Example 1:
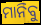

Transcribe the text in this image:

ମାନିବୁ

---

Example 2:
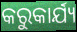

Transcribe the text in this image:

କରୁକାର୍ଯ୍ୟ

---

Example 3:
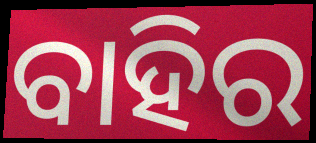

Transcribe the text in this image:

ବାହିର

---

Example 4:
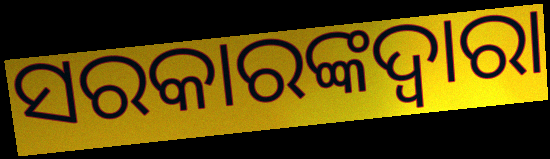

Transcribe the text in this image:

ସରକାରଙ୍କଦ୍ବାରା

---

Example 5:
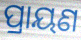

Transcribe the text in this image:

ପ୍ରାୟଣ